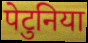
पेटुनिया